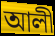
আলী